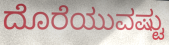
ದೊರೆಯುವಷ್ಟು